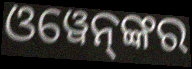
ଓୱେନ୍‌ଙ୍କର